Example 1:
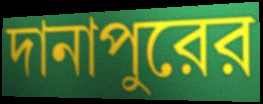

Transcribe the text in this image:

দানাপুরের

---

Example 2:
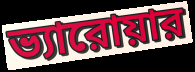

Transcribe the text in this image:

ভ্যারোয়ার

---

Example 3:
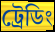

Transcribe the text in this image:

ট্রেডিং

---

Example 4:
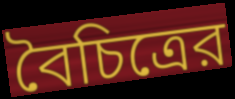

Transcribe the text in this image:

বৈচিত্রের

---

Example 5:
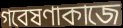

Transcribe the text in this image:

গবেষণাকাজে